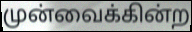
முன்வைக்கின்ற